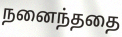
நனைந்ததை